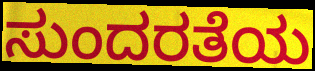
ಸುಂದರತೆಯ